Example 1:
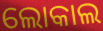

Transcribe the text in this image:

ଲୋକାଲ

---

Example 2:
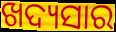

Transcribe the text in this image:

ଖଦ୍ୟସାର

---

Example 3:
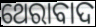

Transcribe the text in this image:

ଥେରାବାଦ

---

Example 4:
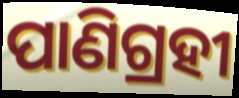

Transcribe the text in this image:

ପାଣିଗ୍ରହୀ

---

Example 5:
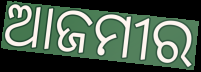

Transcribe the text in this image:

ଆଜମୀର